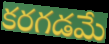
కరగడమే